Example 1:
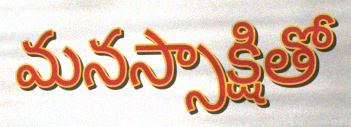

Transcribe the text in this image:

మనస్సాక్షితో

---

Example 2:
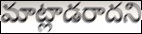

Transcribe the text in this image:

మాట్లాడరాదని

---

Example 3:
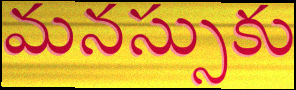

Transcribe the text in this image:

మనస్సుకు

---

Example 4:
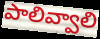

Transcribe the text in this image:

పాలివ్వాలి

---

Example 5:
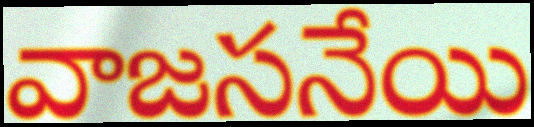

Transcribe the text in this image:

వాజసనేయి